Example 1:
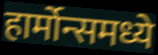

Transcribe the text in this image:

हार्मोन्समध्ये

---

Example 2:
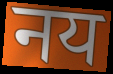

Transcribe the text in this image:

नय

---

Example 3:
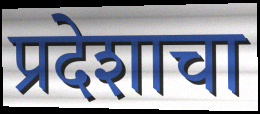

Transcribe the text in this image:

प्रदेशाचा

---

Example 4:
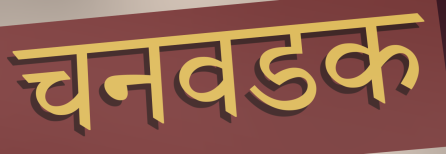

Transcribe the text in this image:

चनवडक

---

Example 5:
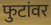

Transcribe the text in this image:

फुटांवर